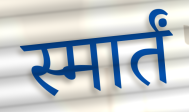
स्मार्तं